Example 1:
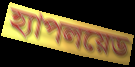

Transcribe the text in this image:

হ্যাপলয়েড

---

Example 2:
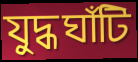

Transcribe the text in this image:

যুদ্ধঘাঁটি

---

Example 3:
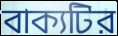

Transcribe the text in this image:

বাক্যটির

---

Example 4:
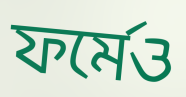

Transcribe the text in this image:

ফর্মেও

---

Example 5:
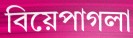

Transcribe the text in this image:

বিয়েপাগলা